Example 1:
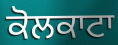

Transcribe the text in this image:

ਕੋਲਕਾਟਾ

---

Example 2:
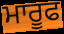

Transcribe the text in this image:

ਮਾਰੂਫ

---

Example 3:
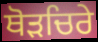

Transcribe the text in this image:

ਥੋੜਚਿਰੇ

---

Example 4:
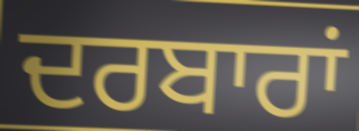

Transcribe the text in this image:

ਦਰਬਾਰਾਂ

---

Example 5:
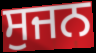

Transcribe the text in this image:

ਸੁਜਨ